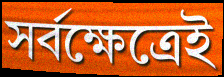
সর্বক্ষেত্রেই